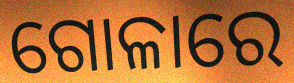
ଗୋଳାରେ